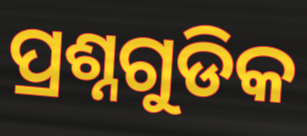
ପ୍ରଶ୍ନଗୁଡିକ